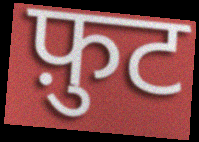
फ़ुट